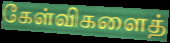
கேள்விகளைத்